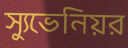
স্যুভেনিয়র